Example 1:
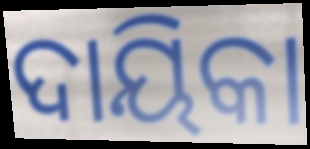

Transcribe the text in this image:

ଦାୟିକା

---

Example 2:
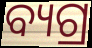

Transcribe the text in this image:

ବ୍ୟଗ୍ର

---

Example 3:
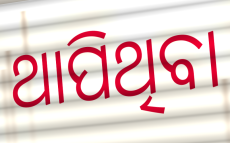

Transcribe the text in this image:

ଥାପିଥିବା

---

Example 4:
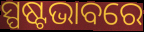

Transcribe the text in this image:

ସ୍ପଷ୍ଟଭାବରେ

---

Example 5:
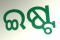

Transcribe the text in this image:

ଇଷ୍ଟ